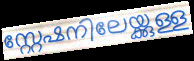
സ്റ്റേഷനിലേയ്ക്കുള്ള